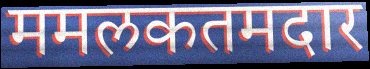
ममलकतमदार